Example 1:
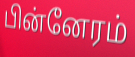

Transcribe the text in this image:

பின்னேரம்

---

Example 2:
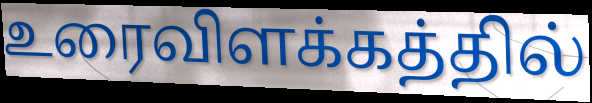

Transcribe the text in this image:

உரைவிளக்கத்தில்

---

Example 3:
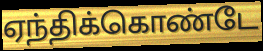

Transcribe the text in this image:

ஏந்திக்கொண்டே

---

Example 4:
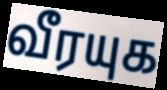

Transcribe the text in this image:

வீரயுக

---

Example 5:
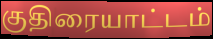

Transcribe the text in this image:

குதிரையாட்டம்